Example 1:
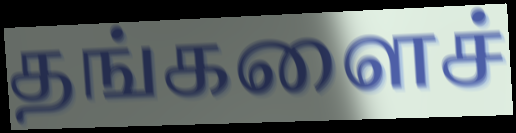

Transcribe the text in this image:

தங்களைச்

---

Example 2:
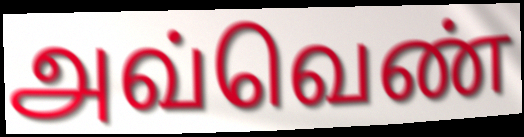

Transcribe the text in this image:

அவ்வெண்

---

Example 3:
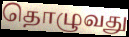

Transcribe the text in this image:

தொழுவது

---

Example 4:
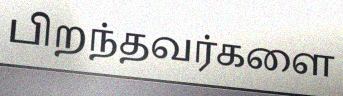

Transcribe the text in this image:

பிறந்தவர்களை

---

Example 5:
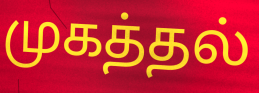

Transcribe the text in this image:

முகத்தல்